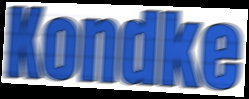
Kondke